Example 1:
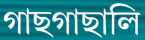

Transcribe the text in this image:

গাছগাছালি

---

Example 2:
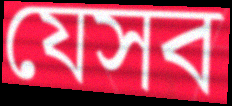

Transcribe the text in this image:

যেসব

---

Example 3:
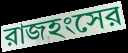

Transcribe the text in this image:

রাজহংসের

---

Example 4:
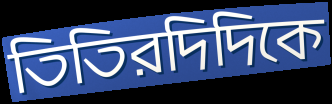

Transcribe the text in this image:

তিতিরদিদিকে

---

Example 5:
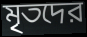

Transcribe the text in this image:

মৃতদের